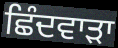
ਛਿੰਦਵਾੜਾ